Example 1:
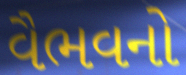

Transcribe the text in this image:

વૈભવનો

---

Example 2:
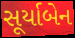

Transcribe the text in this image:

સૂર્યાબેન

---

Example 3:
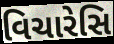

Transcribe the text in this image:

વિચારેસિ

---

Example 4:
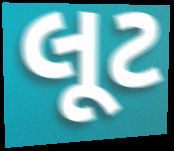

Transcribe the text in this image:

લૂટ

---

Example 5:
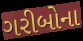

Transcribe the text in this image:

ગરીબોના